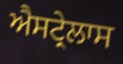
ਐਸਟ੍ਰੇਲਾਸ